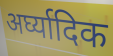
अर्घ्यादिक